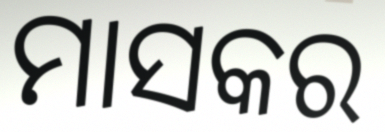
ମାସକର